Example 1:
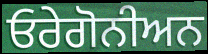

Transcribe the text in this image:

ਓਰੇਗੋਨੀਅਨ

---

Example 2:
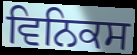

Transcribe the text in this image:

ਵਿਨਿਕਸ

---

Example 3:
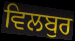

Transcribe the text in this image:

ਵਿਲਬੁਰ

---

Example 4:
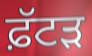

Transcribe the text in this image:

ਫ਼ੱਟੜ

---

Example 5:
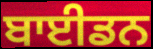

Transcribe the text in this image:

ਬਾਈਡਨ